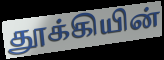
தூக்கியின்